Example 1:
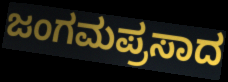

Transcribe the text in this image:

ಜಂಗಮಪ್ರಸಾದ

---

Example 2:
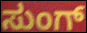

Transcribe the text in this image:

ಸುಂಗ್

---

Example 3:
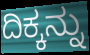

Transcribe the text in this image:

ದಿಕ್ಕನ್ನು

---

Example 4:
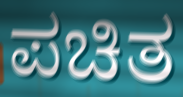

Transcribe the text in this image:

ಪಚಿತ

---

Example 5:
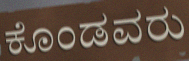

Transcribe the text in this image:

ಕೊಂಡವರು